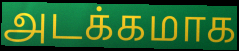
அடக்கமாக